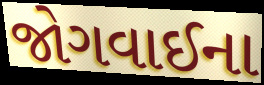
જોગવાઈના